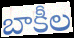
బాకీల